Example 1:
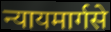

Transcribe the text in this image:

न्यायमार्गसे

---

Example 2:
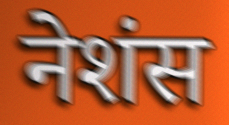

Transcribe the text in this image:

नेशंस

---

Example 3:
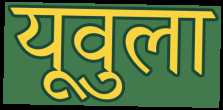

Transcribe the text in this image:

यूवुला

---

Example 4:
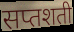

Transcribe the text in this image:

सप्तशती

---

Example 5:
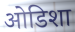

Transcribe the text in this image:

ओडिशा